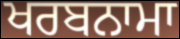
ਖਰਬਨਾਮਾ